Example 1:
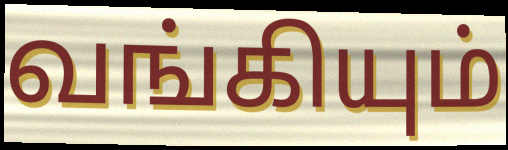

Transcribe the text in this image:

வங்கியும்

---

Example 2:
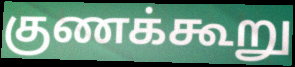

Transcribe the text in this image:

குணக்கூறு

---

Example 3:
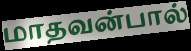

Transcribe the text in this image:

மாதவன்பால்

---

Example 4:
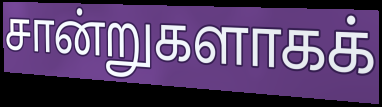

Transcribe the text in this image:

சான்றுகளாகக்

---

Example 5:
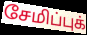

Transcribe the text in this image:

சேமிப்புக்